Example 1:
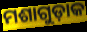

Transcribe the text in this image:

ମଶାଗୁଡ଼ାକ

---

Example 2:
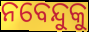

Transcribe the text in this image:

ନବେନ୍ଦୁକୁ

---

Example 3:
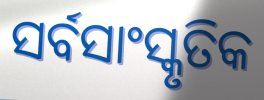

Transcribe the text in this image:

ସର୍ବସାଂସ୍କୃତିକ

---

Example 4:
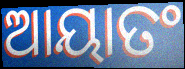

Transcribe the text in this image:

ଆୟାତଂ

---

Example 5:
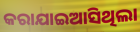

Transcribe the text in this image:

କରାଯାଇଆସିଥିଲା